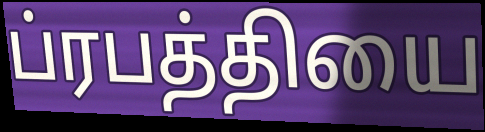
ப்ரபத்தியை